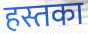
हस्तका